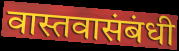
वास्तवासंबंधी